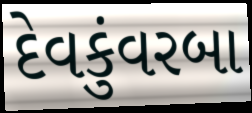
દેવકુંવરબા